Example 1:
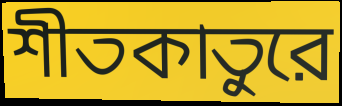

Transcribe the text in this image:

শীতকাতুরে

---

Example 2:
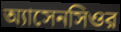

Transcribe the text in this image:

অ্যাসেনসিওর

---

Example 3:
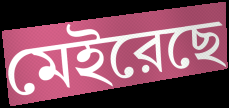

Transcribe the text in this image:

মেইরেছে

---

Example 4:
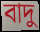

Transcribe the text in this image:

বাদু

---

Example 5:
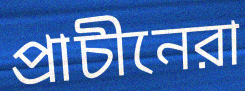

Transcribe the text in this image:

প্রাচীনেরা